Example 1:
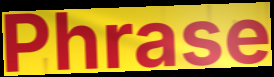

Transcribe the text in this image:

Phrase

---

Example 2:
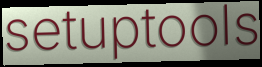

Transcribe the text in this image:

setuptools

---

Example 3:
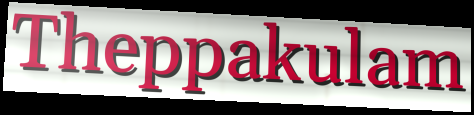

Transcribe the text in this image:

Theppakulam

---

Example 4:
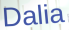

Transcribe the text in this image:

Dalia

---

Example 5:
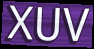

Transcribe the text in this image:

XUV